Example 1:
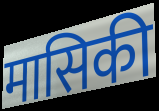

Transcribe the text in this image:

मासिकी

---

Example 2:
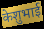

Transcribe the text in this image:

केशुभाई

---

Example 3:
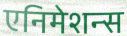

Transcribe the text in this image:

एनिमेशन्स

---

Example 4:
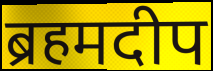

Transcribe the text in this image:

ब्रहमदीप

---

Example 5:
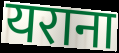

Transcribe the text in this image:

यराना